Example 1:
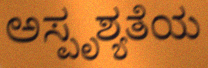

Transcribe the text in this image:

ಅಸ್ಪೃಶ್ಯತೆಯ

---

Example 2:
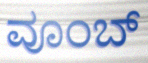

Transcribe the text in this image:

ವೂಂಬ್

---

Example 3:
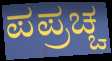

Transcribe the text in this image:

ಪಪ್ರಚ್ಚ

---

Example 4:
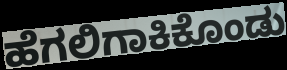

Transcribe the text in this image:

ಹೆಗಲಿಗಾಕಿಕೊಂಡು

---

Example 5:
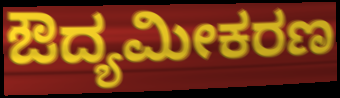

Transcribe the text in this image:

ಔದ್ಯಮೀಕರಣ